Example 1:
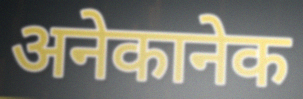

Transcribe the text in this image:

अनेकानेक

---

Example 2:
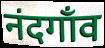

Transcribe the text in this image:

नंदगाँव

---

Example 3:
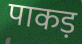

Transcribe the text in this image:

पाकड़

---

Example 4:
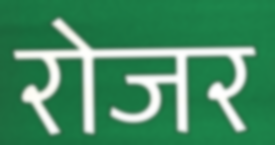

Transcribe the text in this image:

रोजर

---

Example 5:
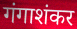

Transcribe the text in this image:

गंगाशंकर